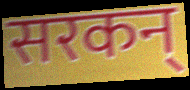
सरकन्